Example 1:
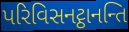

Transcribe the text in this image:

પરિવિસનટ્ઠાનન્તિ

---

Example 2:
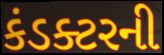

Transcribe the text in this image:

કંડક્ટરની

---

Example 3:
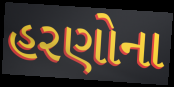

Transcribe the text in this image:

હરણોના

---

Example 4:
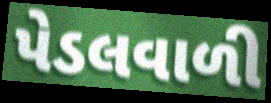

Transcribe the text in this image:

પેડલવાળી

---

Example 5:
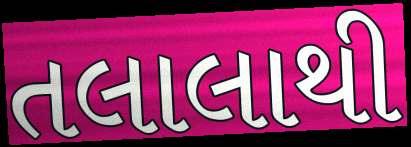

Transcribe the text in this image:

તલાલાથી